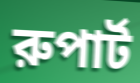
রুপার্ট